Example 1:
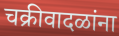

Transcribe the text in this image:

चक्रीवादळांना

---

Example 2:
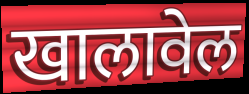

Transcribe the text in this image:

खालावेल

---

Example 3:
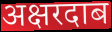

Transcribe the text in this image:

अक्षरदाब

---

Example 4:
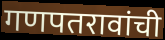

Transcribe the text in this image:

गणपतरावांची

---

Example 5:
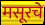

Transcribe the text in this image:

मसूरचे